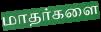
மாதர்களை